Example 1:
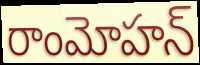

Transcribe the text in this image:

రాంమోహన్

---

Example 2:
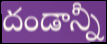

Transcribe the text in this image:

దండాన్నీ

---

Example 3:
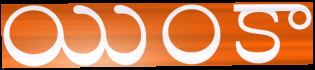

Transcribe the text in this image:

యింకా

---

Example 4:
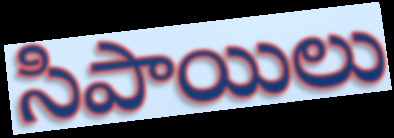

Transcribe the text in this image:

సిపాయిలు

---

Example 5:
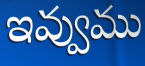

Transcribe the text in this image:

ఇవ్వుము